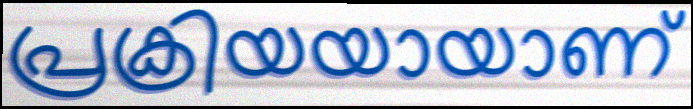
പ്രക്രിയയായാണ്